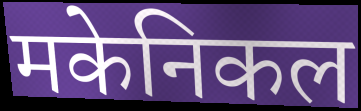
मकेनिकल